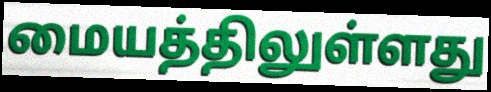
மையத்திலுள்ளது